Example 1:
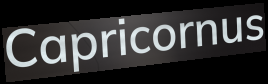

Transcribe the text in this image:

Capricornus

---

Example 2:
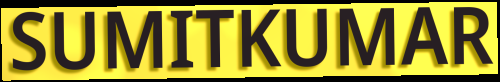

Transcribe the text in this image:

SUMITKUMAR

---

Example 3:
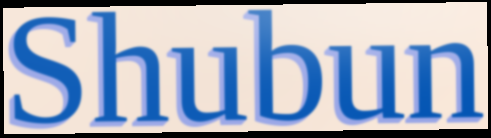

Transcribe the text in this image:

Shubun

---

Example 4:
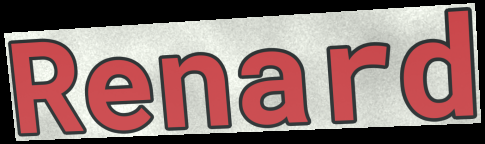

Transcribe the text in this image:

Renard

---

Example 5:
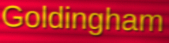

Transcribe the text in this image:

Goldingham